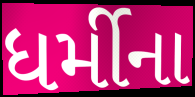
ધર્મીના